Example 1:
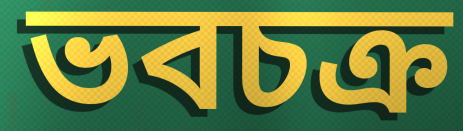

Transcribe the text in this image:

ভবচক্র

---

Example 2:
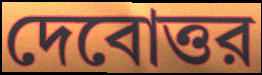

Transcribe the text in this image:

দেবোত্তর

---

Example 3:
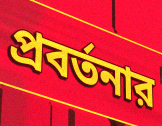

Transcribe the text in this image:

প্রবর্তনার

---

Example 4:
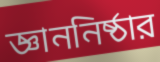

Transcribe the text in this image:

জ্ঞাননিষ্ঠার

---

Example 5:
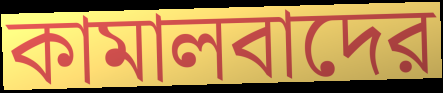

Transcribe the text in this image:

কামালবাদের